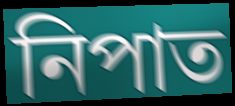
নিপাত